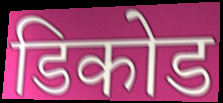
डिकोड